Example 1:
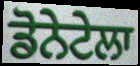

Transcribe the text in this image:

ਡੋਨੇਟੇਲਾ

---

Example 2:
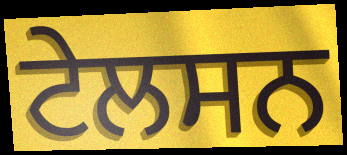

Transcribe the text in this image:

ਟੇਲਸਨ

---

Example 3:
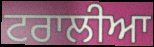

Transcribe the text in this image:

ਟਰਾਲੀਆ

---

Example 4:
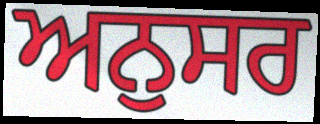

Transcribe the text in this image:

ਅਨੁਸਰ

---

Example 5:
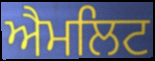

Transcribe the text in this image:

ਐਮਲਿਟ